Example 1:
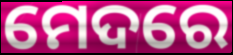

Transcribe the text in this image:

ମେଦରେ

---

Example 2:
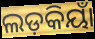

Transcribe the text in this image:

ଲଡ଼କିୟାଁ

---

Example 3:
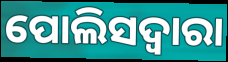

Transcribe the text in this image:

ପୋଲିସଦ୍ୱାରା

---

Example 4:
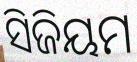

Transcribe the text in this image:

ସିଜିୟମ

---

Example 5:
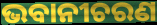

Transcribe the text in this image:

ଭବାନୀଚରଣ